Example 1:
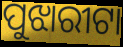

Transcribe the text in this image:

ପୁଝାରୀଟା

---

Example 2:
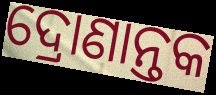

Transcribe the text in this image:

ଦ୍ରୋଣାନ୍ତକ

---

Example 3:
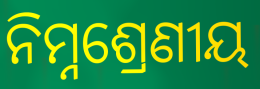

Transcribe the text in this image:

ନିମ୍ନଶ୍ରେଣୀୟ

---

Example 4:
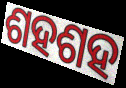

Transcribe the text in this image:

ଶହଶହ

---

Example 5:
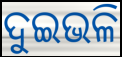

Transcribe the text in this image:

ଦୁଇଭଳି